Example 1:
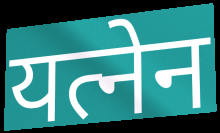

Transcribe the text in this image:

यत्नेन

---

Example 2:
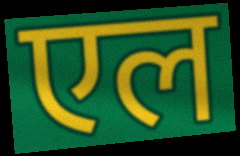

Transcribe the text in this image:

एल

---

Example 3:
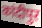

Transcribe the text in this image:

कांदीपुर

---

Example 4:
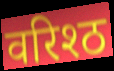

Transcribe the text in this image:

वरिश्ठ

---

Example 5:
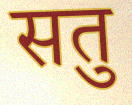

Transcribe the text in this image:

सतु